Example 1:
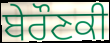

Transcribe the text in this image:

ਬੇਰੌਣਕੀ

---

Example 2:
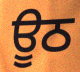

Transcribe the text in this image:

ਊਠ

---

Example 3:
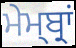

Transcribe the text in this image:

ਮੇਮ੍ਬ੍ਰਾਂ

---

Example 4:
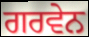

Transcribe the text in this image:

ਗਰਵੇਨ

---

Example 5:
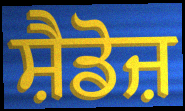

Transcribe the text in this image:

ਸ਼ੈਡੋਜ਼